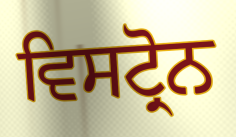
ਵਿਸਟ੍ਰੋਨ